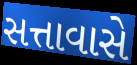
સત્તાવાસે